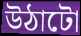
উঠাটো